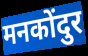
मनकोंदुर